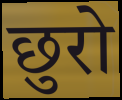
छुरो